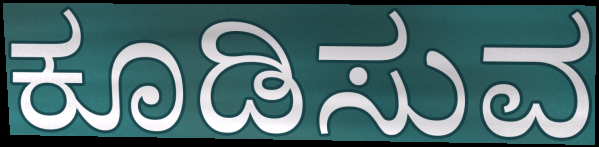
ಕೂಡಿಸುವ